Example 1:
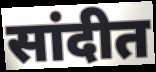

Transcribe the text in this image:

सांदीत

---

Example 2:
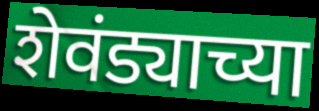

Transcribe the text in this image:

शेवंड्याच्या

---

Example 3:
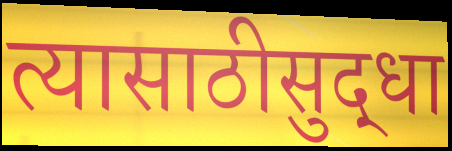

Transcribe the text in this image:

त्यासाठीसुद्धा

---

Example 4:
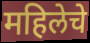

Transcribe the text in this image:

महिलेचे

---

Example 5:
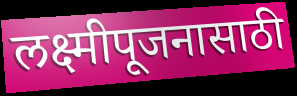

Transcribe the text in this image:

लक्ष्मीपूजनासाठी